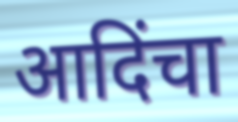
आदिंचा